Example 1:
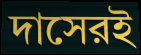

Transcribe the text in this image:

দাসেরই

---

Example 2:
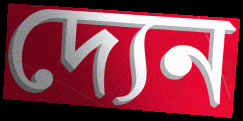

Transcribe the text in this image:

দ্যেন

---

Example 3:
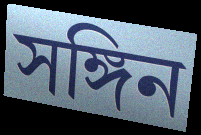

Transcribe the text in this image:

সঙ্গিন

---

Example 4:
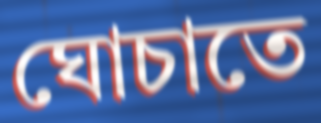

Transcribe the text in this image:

ঘোচাতে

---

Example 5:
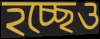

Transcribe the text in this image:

হচ্ছেও